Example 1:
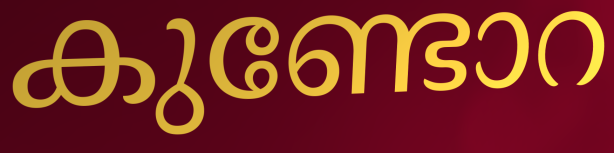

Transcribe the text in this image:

കുണ്ടോറ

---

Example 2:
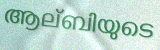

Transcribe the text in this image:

ആല്ബിയുടെ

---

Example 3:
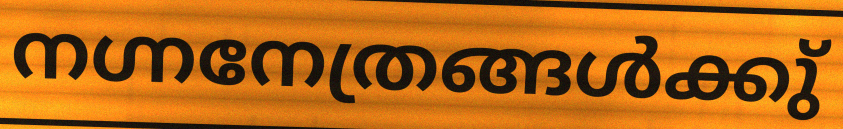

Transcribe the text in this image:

നഗ്നനേത്രങ്ങൾക്കു്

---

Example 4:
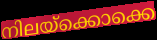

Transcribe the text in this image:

നിലയ്ക്കൊക്കെ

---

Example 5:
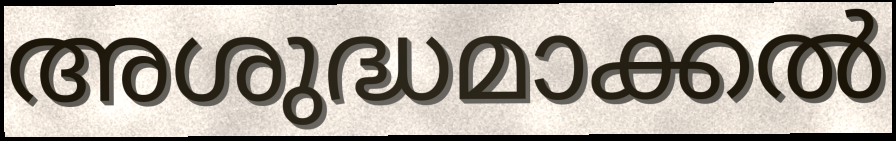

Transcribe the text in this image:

അശുദ്ധമാക്കൽ